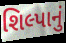
શિલ્પાનું